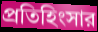
প্রতিহিংসার